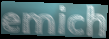
emich